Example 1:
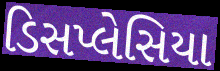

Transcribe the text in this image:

ડિસપ્લેસિયા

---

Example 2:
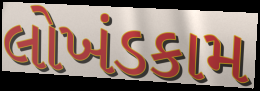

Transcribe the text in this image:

લોખંડકામ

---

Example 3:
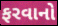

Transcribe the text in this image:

ફરવાનો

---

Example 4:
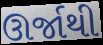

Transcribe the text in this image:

ઊર્જાથી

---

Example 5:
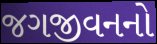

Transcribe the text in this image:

જગજીવનનો